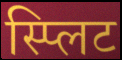
स्प्लिट